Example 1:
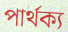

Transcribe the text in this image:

পার্থক্য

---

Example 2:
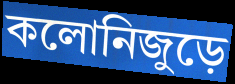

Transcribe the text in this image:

কলোনিজুড়ে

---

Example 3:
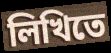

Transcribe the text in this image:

লিখিতে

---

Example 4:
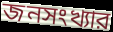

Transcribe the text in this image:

জনসংখ্যার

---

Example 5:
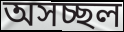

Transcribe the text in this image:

অসচ্ছল